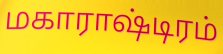
மகாராஷ்டிரம்